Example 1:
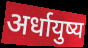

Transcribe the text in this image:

अर्धायुष्य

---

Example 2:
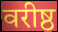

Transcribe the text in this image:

वरीष्ठ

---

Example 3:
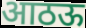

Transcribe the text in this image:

आठऊ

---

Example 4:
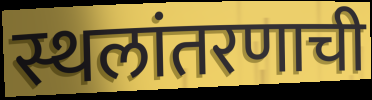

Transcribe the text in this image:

स्थलांतरणाची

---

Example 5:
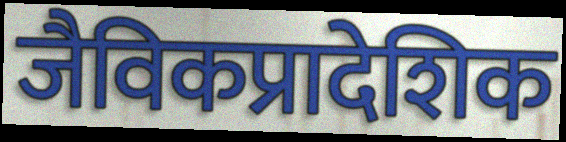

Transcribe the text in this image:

जैविकप्रादेशिक